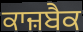
ਕਾਜ਼ਬੈਕ